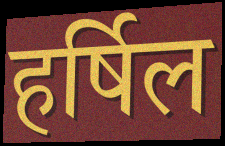
हर्षिल